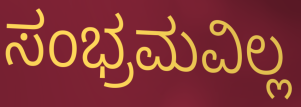
ಸಂಭ್ರಮವಿಲ್ಲ